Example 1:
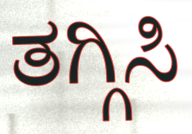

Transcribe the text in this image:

ತಗ್ಗಿಸಿ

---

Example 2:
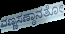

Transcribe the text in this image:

ವಣ್ಣಸಣ್ಠಾನತೋ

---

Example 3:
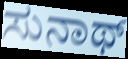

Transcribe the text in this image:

ಸುನಾಥ್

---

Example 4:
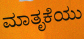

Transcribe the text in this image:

ಮಾತೃಕೆಯು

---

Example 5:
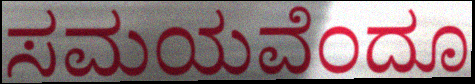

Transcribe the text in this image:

ಸಮಯವೆಂದೂ